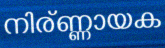
നിര്ണ്ണായക